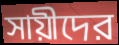
সায়ীদের